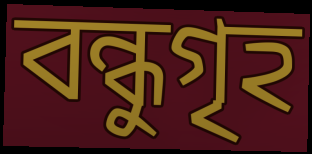
বন্ধুগৃহ